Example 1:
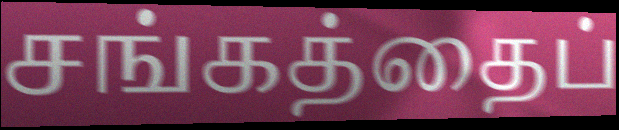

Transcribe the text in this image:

சங்கத்தைப்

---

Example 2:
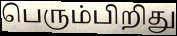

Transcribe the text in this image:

பெரும்பிறிது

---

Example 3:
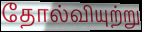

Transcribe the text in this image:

தோல்வியுற்று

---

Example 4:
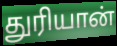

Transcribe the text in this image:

துரியான்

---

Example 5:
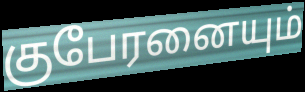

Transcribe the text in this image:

குபேரனையும்